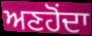
ਅਣਹੋਂਦਾ